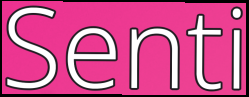
Senti